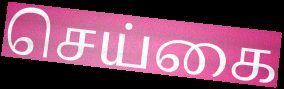
செய்கை